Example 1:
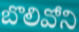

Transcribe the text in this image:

బొలివోని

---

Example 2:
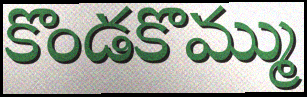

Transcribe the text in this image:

కొండకొమ్ము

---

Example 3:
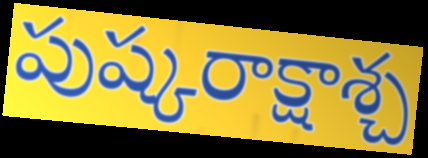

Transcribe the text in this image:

పుష్కరాక్షాశ్చ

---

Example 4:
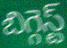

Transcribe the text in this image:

బిగ్గెస్ట్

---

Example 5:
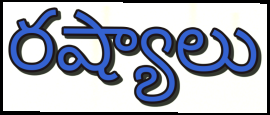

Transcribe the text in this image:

రష్యాలు